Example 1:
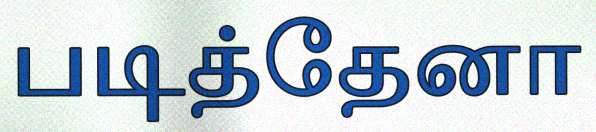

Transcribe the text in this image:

படித்தேனா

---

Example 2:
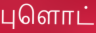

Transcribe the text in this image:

புளொட்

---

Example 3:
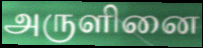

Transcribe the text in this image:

அருளினை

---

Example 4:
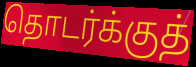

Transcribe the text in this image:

தொடர்க்குத்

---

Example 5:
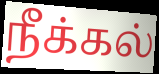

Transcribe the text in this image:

நீக்கல்